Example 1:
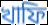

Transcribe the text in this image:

খাফি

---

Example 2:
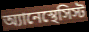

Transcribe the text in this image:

অ্যানেস্থেসিস্ট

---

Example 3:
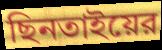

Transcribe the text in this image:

ছিনতাইয়ের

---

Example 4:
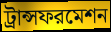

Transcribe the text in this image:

ট্রান্সফরমেশন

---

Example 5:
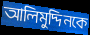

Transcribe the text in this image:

আলিমুদ্দিনকে